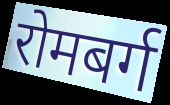
रोमबर्ग